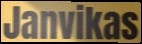
Janvikas